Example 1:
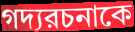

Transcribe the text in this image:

গদ্যরচনাকে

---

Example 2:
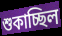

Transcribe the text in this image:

শুকাচ্ছিল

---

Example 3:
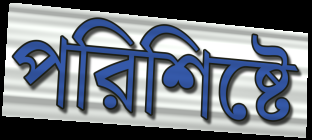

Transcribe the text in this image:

পরিশিষ্টে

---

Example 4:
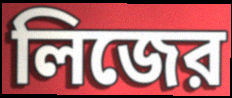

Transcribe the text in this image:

লিজের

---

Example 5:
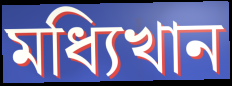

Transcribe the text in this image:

মধ্যিখান